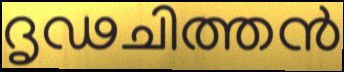
ദൃഢചിത്തൻ